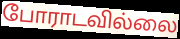
போராடவில்லை